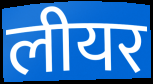
लीयर